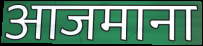
आजमाना